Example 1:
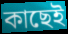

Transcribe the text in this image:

কাছেই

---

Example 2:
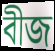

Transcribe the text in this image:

বীজ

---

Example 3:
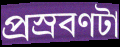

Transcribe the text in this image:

প্রস্রবণটা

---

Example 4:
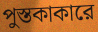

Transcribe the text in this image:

পুস্তকাকারে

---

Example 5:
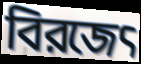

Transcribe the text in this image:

বিরজেৎ